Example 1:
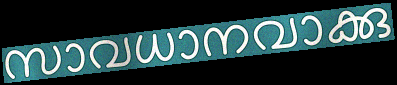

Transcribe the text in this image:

സാവധാനവാക്കു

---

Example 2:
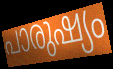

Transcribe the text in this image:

പാരുഷ്യം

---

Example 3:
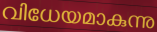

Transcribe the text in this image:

വിധേയമാകുന്നു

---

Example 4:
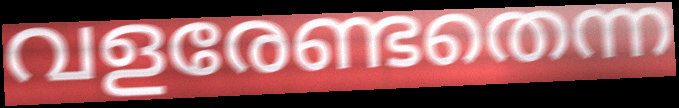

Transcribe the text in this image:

വളരേണ്ടതെന്ന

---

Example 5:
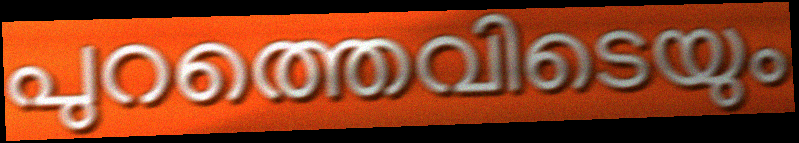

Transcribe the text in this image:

പുറത്തെവിടെയും